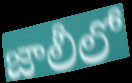
జాలీలో